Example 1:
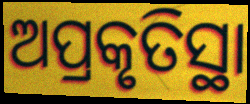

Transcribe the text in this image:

ଅପ୍ରକୃତିସ୍ଥା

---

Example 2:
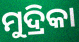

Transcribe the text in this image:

ମୁଦ୍ରିକା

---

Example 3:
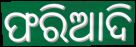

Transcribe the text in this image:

ଫରିଆଦି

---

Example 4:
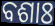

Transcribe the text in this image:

ବଶାଃ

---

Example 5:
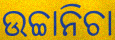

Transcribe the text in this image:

ଉଚ୍ଚାନିଚା